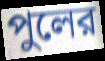
পুলের